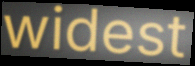
widest